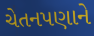
ચેતનપણાને